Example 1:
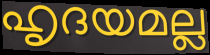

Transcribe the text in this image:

ഹൃദയമല്ല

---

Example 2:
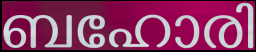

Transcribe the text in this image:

ബഹോരി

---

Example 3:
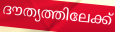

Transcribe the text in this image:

ദൗത്യത്തിലേക്ക്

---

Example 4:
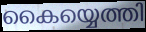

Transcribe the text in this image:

കൈയ്യെത്തി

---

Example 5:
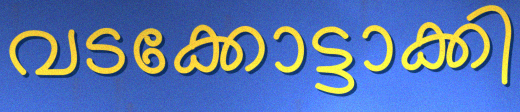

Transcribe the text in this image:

വടക്കോട്ടാക്കി